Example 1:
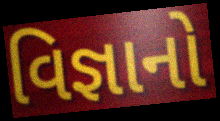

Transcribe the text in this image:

વિજ્ઞાનો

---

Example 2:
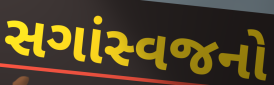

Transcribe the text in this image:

સગાંસ્વજનો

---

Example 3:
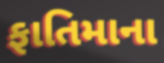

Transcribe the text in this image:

ફાતિમાના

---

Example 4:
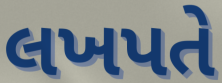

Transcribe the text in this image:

લખપતે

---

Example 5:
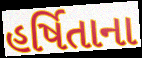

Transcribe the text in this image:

હર્ષિતાના